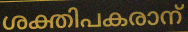
ശക്തിപകരാന്